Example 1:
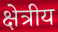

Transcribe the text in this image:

क्षेत्रीय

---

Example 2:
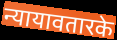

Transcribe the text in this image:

न्यायावतारके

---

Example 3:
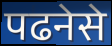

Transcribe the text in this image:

पढनेसे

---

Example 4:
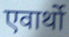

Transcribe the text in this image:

एवार्थो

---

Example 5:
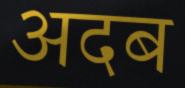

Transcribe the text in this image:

अदब